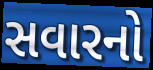
સવારનો